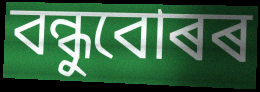
বন্ধুবোৰৰ